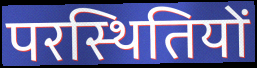
परस्थितियों